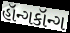
હૉન્ગકૉન્ગ